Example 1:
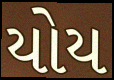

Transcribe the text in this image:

યોય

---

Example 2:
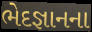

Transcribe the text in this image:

ભેદજ્ઞાનના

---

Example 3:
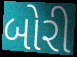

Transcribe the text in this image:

બોરી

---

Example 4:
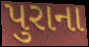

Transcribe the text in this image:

પુરાના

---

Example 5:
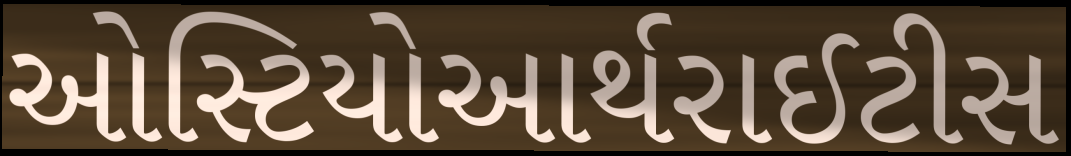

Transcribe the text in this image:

ઓસ્ટિયોઆર્થરાઈટીસ